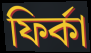
ফির্কা